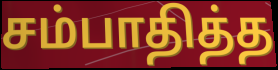
சம்பாதித்த